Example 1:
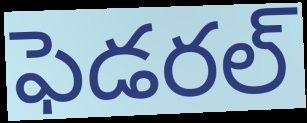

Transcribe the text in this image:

ఫెడరల్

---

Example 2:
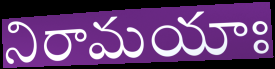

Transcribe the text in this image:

నిరామయాః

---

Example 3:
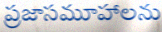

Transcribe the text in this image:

ప్రజాసమూహాలను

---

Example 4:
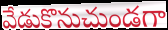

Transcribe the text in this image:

వేడుకొనుచుండగా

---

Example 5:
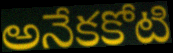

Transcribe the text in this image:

అనేకకోటి